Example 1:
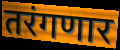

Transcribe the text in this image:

तरंगणार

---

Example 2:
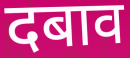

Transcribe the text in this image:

दबाव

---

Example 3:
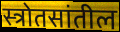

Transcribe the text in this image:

स्त्रोतसांतील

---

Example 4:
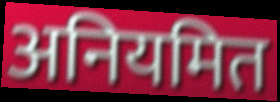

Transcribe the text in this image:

अनियमित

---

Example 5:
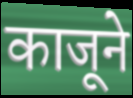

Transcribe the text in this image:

काजूने